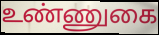
உண்ணுகை